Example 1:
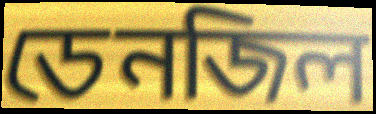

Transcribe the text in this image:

ডেনজিল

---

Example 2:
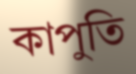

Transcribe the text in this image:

কাপুতি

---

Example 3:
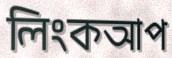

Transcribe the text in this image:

লিংকআপ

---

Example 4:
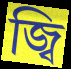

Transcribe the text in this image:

জ্বি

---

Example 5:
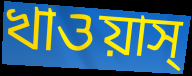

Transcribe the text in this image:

খাওয়াস্